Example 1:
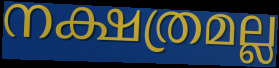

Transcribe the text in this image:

നക്ഷത്രമല്ല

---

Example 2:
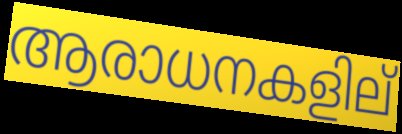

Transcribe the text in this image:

ആരാധനകളില്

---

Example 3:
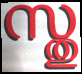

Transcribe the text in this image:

സ്തു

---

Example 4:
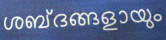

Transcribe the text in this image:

ശബ്ദങ്ങളായും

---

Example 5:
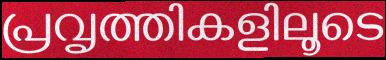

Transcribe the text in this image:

പ്രവൃത്തികളിലൂടെ